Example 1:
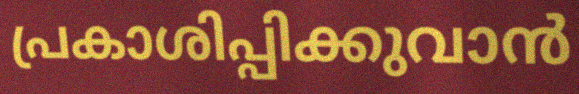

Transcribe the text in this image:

പ്രകാശിപ്പിക്കുവാൻ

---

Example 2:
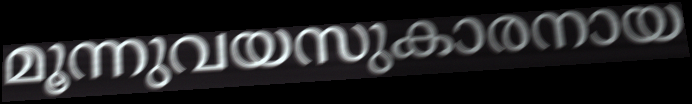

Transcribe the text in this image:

മൂന്നുവയസുകാരനായ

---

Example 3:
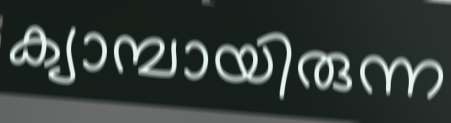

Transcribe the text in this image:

ക്യാമ്പായിരുന്ന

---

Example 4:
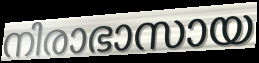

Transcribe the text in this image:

നിരാഭാസായ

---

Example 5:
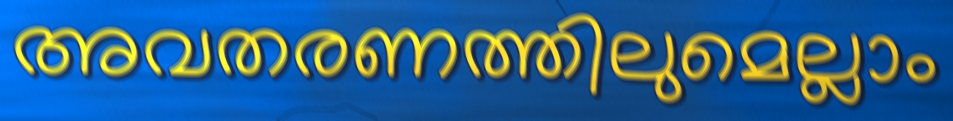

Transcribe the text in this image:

അവതരണത്തിലുമെല്ലാം